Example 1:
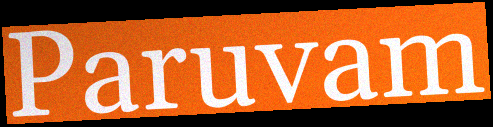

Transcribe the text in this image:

Paruvam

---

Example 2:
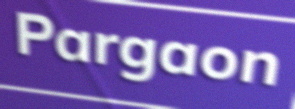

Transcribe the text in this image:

Pargaon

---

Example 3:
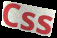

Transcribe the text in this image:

Css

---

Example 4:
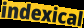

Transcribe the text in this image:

indexical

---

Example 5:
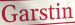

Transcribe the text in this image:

Garstin